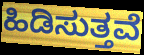
ಹಿಡಿಸುತ್ತವೆ